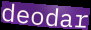
deodar